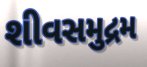
શીવસમુદ્રમ